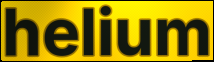
helium